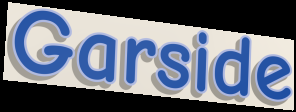
Garside